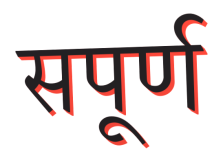
सपूर्ण